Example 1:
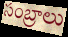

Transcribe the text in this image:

సంబ్రాలు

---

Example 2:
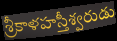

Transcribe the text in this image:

శ్రీకాళహస్తీశ్వరుడు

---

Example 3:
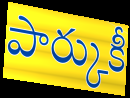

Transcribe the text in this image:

పార్కుకీ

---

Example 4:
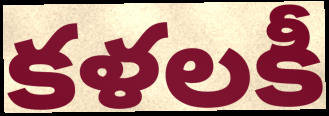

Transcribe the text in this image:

కళలకీ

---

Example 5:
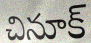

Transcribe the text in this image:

చినూక్